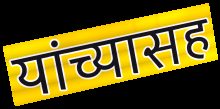
यांच्यासह